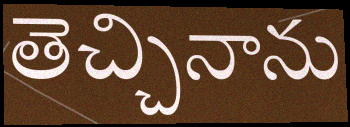
తెచ్చినాను